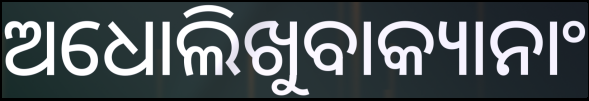
ଅଧୋଲିଖୁବାକ୍ୟାନାଂ